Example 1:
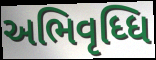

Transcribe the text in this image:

અભિવૃધ્ધિ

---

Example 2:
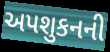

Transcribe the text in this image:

અપશુકનની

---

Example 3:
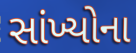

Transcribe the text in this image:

સાંખ્યોના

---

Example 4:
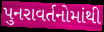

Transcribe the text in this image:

પુનરાવર્તનોમાંથી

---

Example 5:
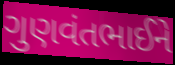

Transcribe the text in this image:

ગુણવંતભાઈને